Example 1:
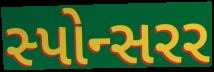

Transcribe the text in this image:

સ્પોન્સરર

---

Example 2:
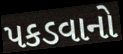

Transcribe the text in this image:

પકડવાનો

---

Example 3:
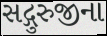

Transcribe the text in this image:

સદ્ગુરુજીના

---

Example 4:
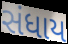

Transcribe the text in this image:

સંધાય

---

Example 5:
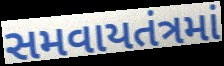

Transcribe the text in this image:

સમવાયતંત્રમાં